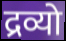
द्रव्यो